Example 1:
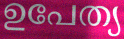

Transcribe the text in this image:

ഉപേത്യ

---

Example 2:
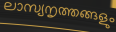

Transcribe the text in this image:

ലാസ്യനൃത്തങ്ങളും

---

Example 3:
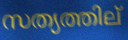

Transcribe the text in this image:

സത്യത്തില്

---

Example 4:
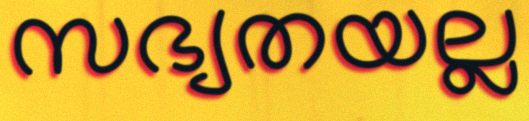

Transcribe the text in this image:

സഭ്യതയല്ല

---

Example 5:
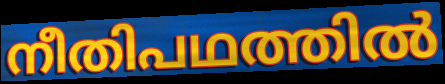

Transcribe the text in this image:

നീതിപഥത്തിൽ